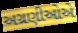
અગ્રણીઓએ